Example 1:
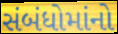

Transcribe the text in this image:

સંબંધોમાંનો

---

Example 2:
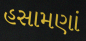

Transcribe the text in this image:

હસામણાં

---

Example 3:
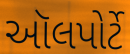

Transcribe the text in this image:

ઑલપોર્ટે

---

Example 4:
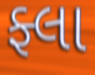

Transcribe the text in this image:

ફ્લા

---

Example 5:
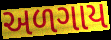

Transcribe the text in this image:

અળગાય